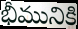
భీమునికి